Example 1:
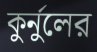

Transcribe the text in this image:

কুর্নুলের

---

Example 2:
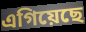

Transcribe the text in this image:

এগিয়েছে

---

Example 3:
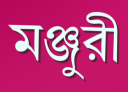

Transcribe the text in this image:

মঞ্জুরী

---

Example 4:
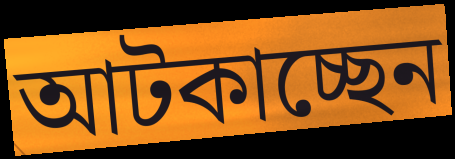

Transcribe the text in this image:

আটকাচ্ছেন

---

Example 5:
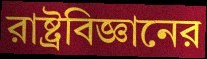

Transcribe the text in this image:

রাষ্ট্রবিজ্ঞানের